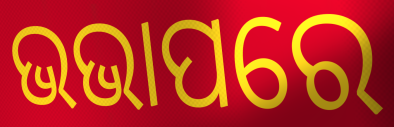
ଭଭାପରେ